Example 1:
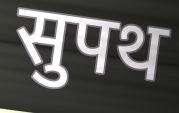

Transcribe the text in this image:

सुपथ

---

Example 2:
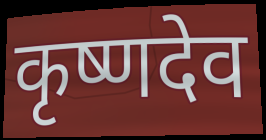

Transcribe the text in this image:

कृष्णदेव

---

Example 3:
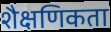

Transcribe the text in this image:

शैक्षणिकता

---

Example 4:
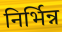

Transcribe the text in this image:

निर्भिन्न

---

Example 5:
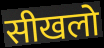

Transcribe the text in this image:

सीखलो